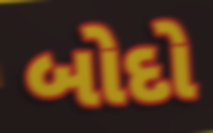
બોદો